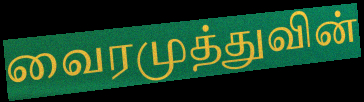
வைரமுத்துவின்